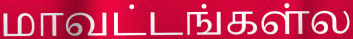
மாவட்டங்கள்ல